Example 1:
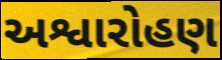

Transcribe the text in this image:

અશ્વારોહણ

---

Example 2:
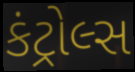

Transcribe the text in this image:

કંટ્રોલ્સ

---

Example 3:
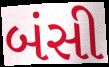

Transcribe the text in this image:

બંસી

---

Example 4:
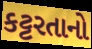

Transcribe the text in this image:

કટ્ટરતાનો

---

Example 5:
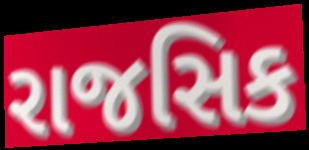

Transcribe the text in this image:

રાજસિક